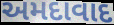
અમદાવાદ